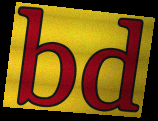
bd